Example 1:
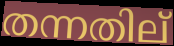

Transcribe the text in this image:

തന്നതില്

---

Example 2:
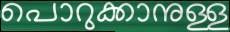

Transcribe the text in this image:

പൊറുക്കാനുള്ള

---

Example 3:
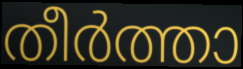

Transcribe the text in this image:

തീർത്താ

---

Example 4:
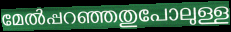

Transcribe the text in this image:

മേൽപ്പറഞ്ഞതുപോലുള്ള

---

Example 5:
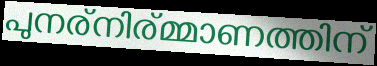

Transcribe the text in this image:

പുനര്നിര്മ്മാണത്തിന്